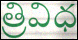
త్రివిధ